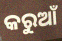
କରୁଆଁ